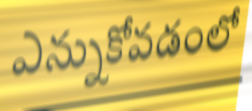
ఎన్నుకోవడంలో